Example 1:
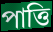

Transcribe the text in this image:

পাত্তি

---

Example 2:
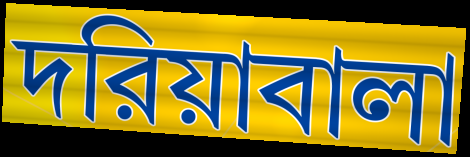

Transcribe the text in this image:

দরিয়াবালা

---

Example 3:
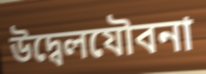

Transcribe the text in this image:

উদ্বেলযৌবনা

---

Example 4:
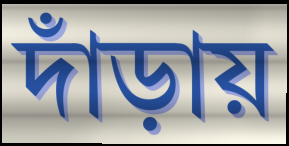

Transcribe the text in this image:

দাঁড়ায়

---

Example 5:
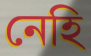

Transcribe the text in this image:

নেহি